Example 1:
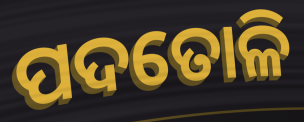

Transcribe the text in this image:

ପଦତୋଳି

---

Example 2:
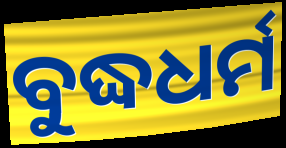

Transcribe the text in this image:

ବୁଦ୍ଧଧର୍ମ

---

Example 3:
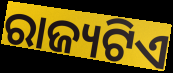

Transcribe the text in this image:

ରାଜ୍ୟଟିଏ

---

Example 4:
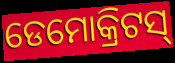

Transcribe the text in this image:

ଡେମୋକ୍ରିଟସ୍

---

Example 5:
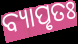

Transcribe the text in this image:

ବ୍ୟାପୃତଃ